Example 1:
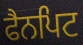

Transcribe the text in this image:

ਫੈਨਪਿਟ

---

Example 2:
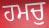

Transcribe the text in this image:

ਹਮਚੁ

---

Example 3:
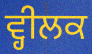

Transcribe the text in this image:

ਵ੍ਹੀਲਕ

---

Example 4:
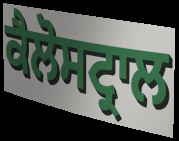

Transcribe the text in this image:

ਕੈਲੋਸਟ੍ਰਾਲ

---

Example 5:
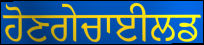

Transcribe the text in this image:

ਹੋਣਗੇਚਾਈਲਡ